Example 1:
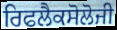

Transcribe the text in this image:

ਰਿਫਲੈਕਸੋਲੋਜੀ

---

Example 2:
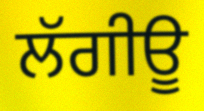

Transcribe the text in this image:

ਲੱਗੀਊ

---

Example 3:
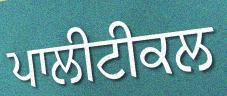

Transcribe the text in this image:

ਪਾਲੀਟੀਕਲ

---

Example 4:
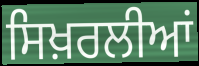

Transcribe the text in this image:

ਸਿਖ਼ਰਲੀਆਂ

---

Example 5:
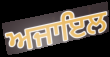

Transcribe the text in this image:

ਅਜਾਇਲ